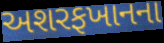
અશરફખાનના